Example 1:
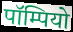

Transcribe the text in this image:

पॉम्पियो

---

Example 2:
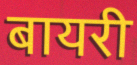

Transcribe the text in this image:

बायरी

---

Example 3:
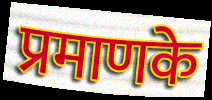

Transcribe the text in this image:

प्रमाणके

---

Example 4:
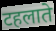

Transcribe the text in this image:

टहलाते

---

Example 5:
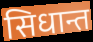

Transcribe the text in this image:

सिधान्त